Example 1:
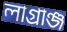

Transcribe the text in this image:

লাগ্ৰাঞ্জ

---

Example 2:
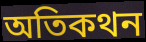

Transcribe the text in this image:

অতিকথন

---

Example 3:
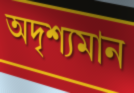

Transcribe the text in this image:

অদৃশ্যমান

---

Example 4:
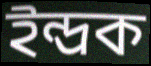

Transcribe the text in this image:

ইন্দ্ৰক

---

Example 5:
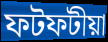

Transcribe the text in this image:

ফটফটীয়া